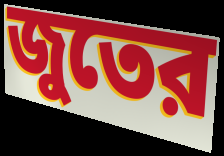
জুতের